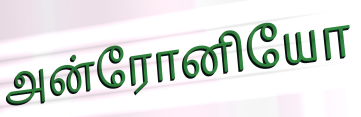
அன்ரோனியோ